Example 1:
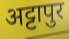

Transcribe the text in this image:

अट्टापुर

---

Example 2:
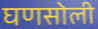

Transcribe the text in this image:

घणसोली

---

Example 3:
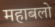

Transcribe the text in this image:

महाबलो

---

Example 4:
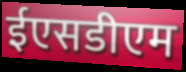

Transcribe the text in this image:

ईएसडीएम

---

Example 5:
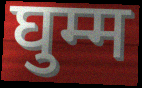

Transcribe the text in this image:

घुम्म